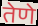
तेणे